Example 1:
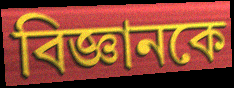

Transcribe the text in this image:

বিজ্ঞানকে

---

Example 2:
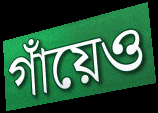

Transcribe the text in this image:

গাঁয়েও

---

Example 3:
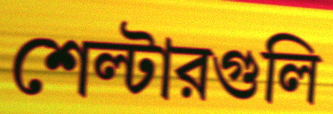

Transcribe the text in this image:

শেল্টারগুলি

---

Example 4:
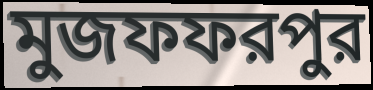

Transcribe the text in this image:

মুজফফরপুর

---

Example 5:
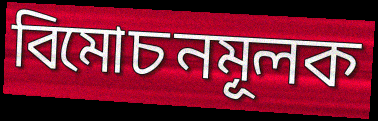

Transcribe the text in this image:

বিমোচনমূলক